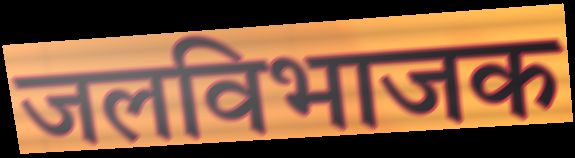
जलविभाजक